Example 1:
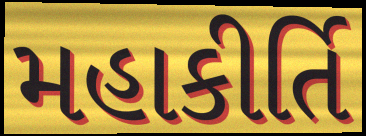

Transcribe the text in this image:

મહાકીર્તિ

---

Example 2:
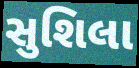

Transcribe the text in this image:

સુશિલા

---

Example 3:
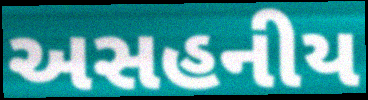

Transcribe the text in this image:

અસહનીય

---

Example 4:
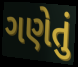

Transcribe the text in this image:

ગણેતું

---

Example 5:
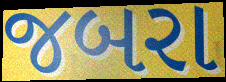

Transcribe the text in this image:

જબરા